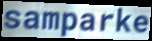
samparke